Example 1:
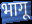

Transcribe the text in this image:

भागू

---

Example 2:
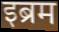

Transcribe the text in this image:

इब्रम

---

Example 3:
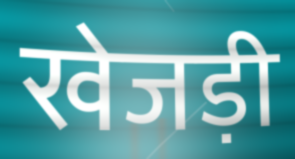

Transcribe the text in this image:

खेजड़ी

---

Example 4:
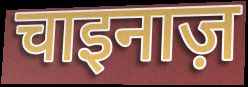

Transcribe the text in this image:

चाइनाज़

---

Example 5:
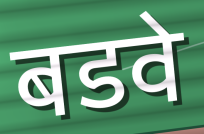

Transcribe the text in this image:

बडवे